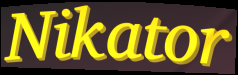
Nikator